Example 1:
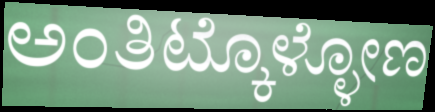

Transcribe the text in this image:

ಅಂತಿಟ್ಕೊಳ್ಳೋಣ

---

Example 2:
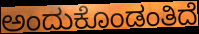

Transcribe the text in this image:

ಅಂದುಕೊಂಡಂತಿದೆ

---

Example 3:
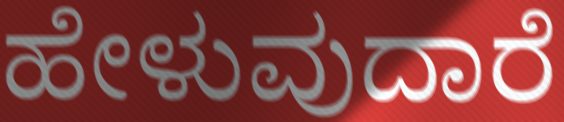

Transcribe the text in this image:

ಹೇಳುವುದಾರೆ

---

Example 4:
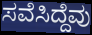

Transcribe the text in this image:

ಸವೆಸಿದ್ದೆವು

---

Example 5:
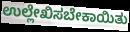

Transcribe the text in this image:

ಉಲ್ಲೇಖಿಸಬೇಕಾಯಿತು